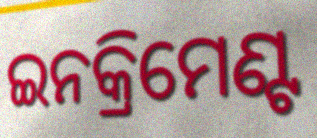
ଇନକ୍ରିମେଣ୍ଟ